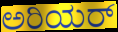
ಅರಿಯರ್